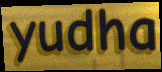
yudha